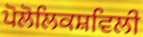
ਪੋਲੋਲਿਕਸ਼ਵਿਲੀ